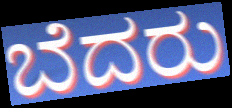
ಬೆದರು